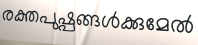
രക്തപുഷ്പങ്ങൾക്കുമേൽ